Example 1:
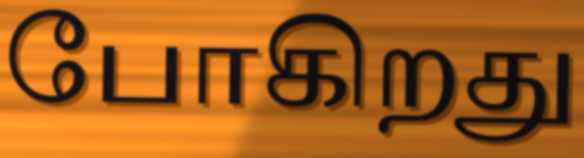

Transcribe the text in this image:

போகிறது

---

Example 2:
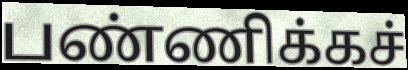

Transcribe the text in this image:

பண்ணிக்கச்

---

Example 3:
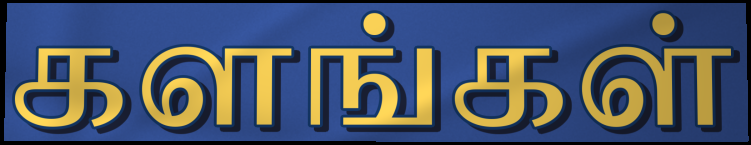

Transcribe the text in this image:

களங்கள்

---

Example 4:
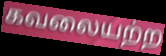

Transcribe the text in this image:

கவலையற்ற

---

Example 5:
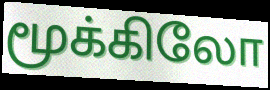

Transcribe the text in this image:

மூக்கிலோ